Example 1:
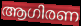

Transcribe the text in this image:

ആഗിരണ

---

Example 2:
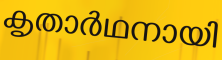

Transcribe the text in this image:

കൃതാർഥനായി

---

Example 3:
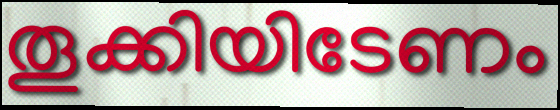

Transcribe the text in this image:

തൂക്കിയിടേണം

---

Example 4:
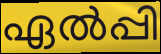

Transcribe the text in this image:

ഏൽപ്പി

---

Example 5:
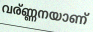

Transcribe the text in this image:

വര്ണ്ണനയാണ്